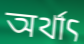
অৰ্থাৎ